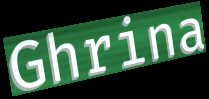
Ghrina